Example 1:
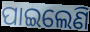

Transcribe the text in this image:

ପାଇଲେଣି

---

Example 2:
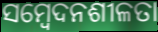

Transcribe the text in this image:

ସମ୍ଵେଦନଶୀଳତା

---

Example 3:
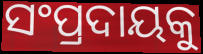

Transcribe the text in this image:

ସଂପ୍ରଦାୟକୁ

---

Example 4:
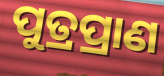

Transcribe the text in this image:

ପୁତ୍ରପ୍ରାଣ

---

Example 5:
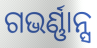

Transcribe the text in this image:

ଗଭର୍ଣ୍ଣାନ୍ସ